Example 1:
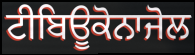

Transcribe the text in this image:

ਟੀਬਿਊਕੋਨਾਜੋਲ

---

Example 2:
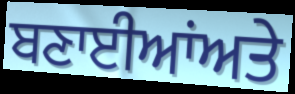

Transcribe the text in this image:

ਬਣਾਈਆਂਅਤੇ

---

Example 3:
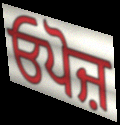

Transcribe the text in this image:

ਓਪੋਜ਼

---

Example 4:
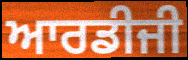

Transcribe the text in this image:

ਆਰਡੀਜੀ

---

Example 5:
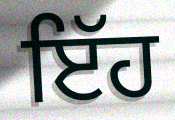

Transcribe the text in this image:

ਇੱਹ